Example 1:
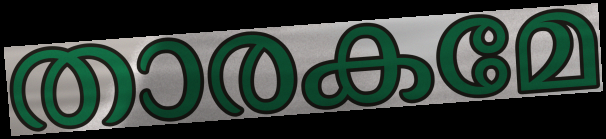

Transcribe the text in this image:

താരകമേ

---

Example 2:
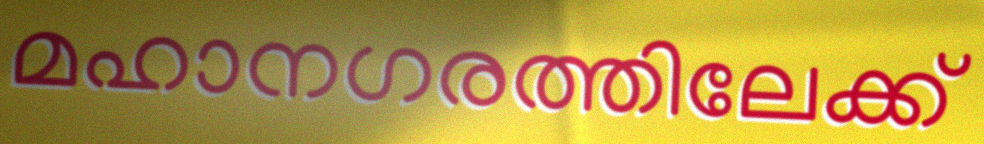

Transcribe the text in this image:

മഹാനഗരത്തിലേക്ക്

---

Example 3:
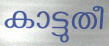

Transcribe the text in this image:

കാട്ടുതീ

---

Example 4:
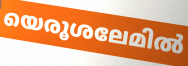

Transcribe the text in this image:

യെരൂശലേമിൽ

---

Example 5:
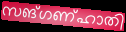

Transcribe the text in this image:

സങ്ഗണ്ഹാതി